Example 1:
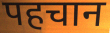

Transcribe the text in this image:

पहचान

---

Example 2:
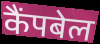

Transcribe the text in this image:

कैंपबेल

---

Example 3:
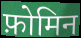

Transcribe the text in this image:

फ़ोमिन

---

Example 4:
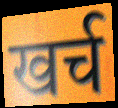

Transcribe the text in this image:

खर्च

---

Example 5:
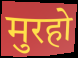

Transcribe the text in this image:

मुरहो